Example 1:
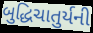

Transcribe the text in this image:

બુદ્ધિચાતુર્યની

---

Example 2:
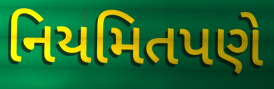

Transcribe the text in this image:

નિયમિતપણે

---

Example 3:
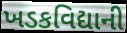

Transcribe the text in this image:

ખડકવિદ્યાની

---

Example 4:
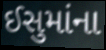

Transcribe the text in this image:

ઈસુમાંના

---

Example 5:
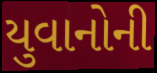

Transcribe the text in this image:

યુવાનોની